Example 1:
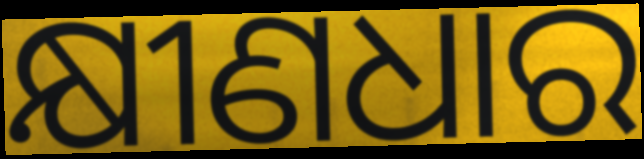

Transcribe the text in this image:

କ୍ଷୀଣଧାର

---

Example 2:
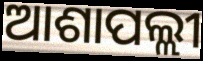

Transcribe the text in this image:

ଆଶାପଲ୍ଲୀ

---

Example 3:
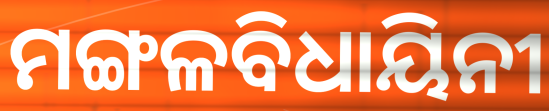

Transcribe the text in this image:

ମଙ୍ଗଳବିଧାୟିନୀ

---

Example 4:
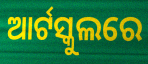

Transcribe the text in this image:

ଆର୍ଟସ୍କୁଲରେ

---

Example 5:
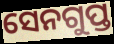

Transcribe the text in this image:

ସେନଗୁପ୍ତ